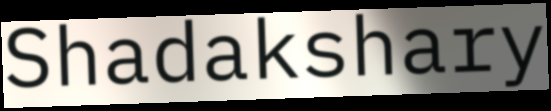
Shadakshary